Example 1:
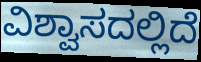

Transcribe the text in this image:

ವಿಶ್ವಾಸದಲ್ಲಿದೆ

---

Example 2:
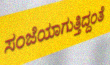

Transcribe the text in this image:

ಸಂಜೆಯಾಗುತ್ತಿದ್ದಂತೆ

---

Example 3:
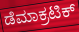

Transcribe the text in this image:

ಡೆಮಾಕ್ರಟಿಕ್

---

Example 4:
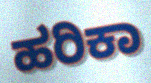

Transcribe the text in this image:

ಹರಿಕಾ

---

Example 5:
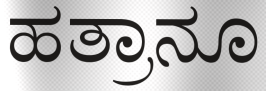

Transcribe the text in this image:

ಹತ್ರಾನೂ